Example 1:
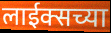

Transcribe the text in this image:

लाईक्सच्या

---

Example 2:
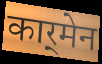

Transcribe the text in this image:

कार्मेन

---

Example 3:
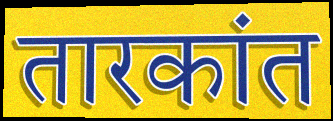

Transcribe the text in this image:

तारकांत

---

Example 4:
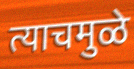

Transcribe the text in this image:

त्याचमुळे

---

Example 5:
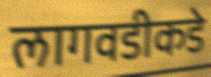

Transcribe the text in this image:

लागवडीकडे